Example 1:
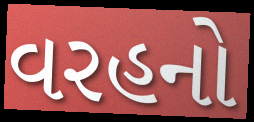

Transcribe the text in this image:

વરહનો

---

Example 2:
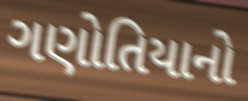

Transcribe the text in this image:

ગણોતિયાનો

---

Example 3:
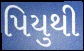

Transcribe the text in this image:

પિયુથી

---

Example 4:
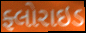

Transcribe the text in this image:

ફ્લોરાઇડ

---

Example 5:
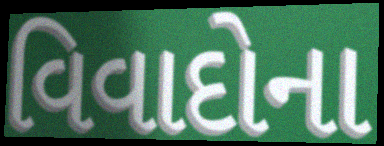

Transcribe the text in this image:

વિવાદોના